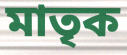
মাতৃক